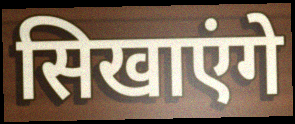
सिखाएंगे